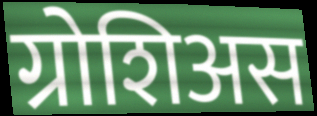
ग्रोशिअस